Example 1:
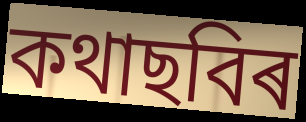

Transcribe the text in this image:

কথাছবিৰ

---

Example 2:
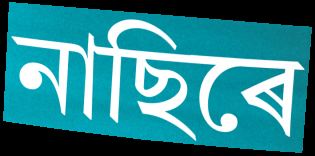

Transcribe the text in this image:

নাছিৰে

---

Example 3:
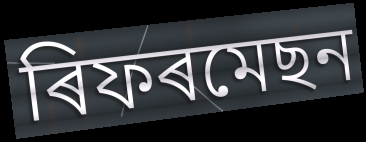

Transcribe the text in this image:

ৰিফৰমেছন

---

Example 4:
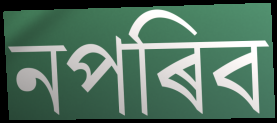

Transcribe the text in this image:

নপৰিব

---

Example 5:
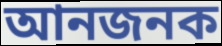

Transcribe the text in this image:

আনজনক